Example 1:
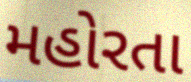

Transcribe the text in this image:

મહોરતા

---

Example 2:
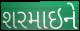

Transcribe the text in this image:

શરમાઇને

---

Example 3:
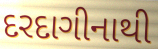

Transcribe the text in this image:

દરદાગીનાથી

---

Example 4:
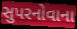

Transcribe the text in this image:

સુપરનોવાના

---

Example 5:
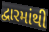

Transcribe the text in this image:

દ્વારમાંથી